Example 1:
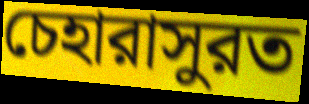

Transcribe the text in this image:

চেহারাসুরত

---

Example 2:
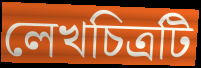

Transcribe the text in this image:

লেখচিত্রটি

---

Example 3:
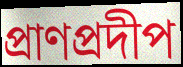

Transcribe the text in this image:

প্রাণপ্রদীপ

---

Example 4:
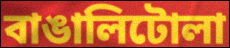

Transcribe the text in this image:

বাঙালিটোলা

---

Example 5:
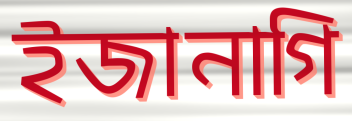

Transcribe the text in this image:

ইজানাগি